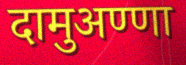
दामुअण्णा